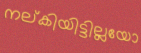
നല്കിയിട്ടില്ലയോ